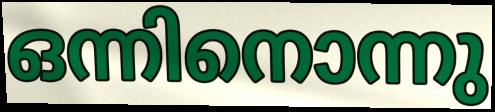
ഒന്നിനൊന്നു